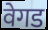
वेगड